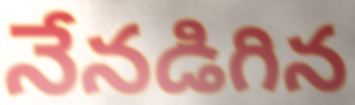
నేనడిగిన